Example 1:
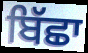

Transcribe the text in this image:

ਬਿੱਛਾ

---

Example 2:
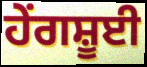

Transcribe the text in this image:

ਹੇਂਗਸ਼ੂਈ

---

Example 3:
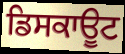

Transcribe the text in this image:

ਡਿਸਕਾਊਟ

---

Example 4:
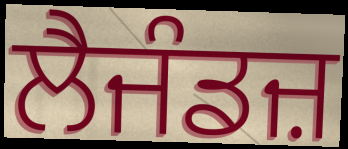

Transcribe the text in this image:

ਲੈਜੰਡਜ਼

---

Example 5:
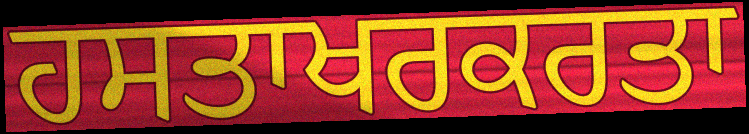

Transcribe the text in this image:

ਹਸਤਾਖਰਕਰਤਾ